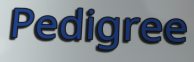
Pedigree